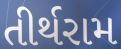
તીર્થરામ